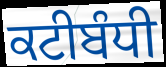
ਕਟੀਬੰਧੀ